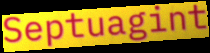
Septuagint